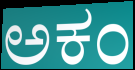
ಅಕಂ